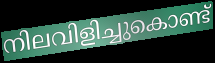
നിലവിളിച്ചുകൊണ്ട്